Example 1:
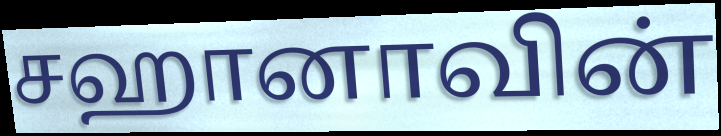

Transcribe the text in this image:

சஹானாவின்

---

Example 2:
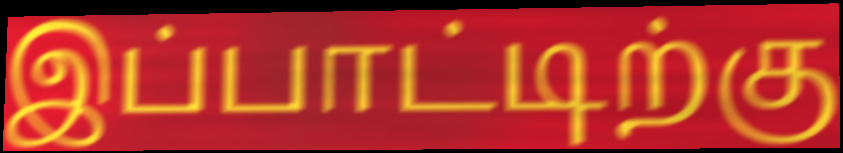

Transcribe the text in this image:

இப்பாட்டிற்கு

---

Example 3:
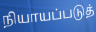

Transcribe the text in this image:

நியாயப்படுத்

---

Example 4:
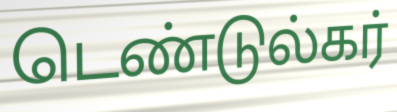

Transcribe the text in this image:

டெண்டுல்கர்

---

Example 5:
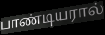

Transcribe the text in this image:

பாண்டியரால்